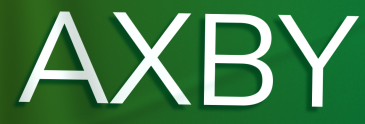
AXBY